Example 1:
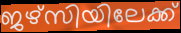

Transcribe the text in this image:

ജഴ്സിയിലേക്ക്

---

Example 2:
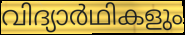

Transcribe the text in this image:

വിദ്യാർഥികളും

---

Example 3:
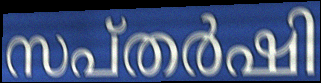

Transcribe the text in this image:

സപ്തർഷി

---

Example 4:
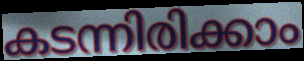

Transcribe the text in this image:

കടന്നിരിക്കാം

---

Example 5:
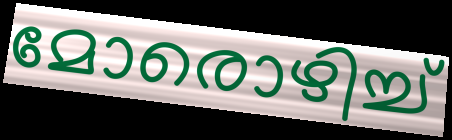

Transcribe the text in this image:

മോരൊഴിച്ച്